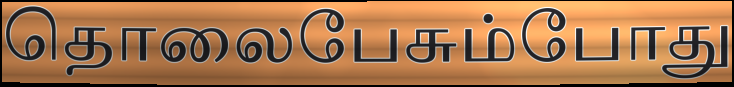
தொலைபேசும்போது